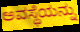
ಅವಸ್ಥೆಯನ್ನು